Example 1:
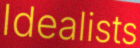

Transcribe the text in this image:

Idealists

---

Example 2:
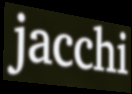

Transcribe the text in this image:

jacchi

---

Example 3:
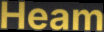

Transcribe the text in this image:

Heam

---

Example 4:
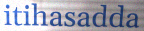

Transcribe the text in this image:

itihasadda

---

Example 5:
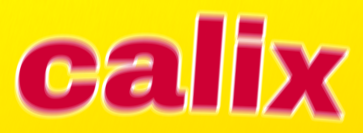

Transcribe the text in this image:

calix